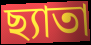
ছ্যাতা